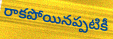
రాకపోయినప్పటికీ